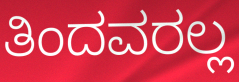
ತಿಂದವರಲ್ಲ